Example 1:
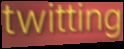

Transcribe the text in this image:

twitting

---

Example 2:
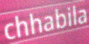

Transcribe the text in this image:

chhabila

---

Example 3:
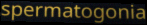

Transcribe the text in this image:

spermatogonia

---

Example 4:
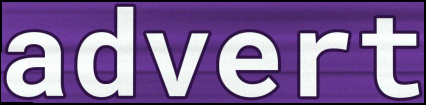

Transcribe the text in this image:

advert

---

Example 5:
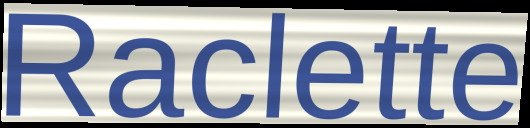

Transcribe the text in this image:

Raclette